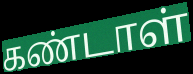
கண்டாள்